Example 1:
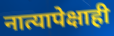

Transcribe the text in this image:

नात्यापेक्षाही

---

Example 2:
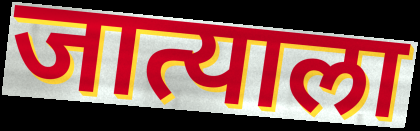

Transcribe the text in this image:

जात्याला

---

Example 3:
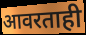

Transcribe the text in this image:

आवरताही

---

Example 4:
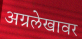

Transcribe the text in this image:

अग्रलेखावर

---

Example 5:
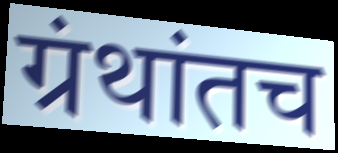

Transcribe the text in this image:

ग्रंथांतच